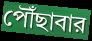
পৌঁছাবার